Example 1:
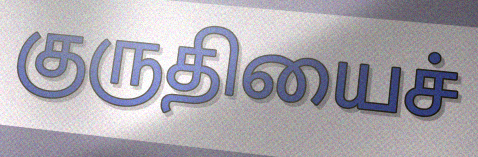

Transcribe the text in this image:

குருதியைச்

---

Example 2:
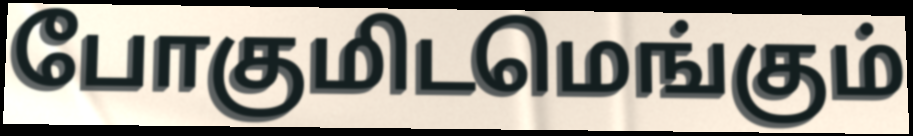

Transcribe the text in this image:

போகுமிடமெங்கும்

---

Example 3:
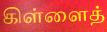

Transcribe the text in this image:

கிள்ளைத்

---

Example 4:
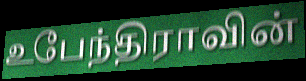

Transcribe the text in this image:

உபேந்திராவின்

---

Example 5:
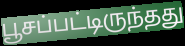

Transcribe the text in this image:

பூசப்பட்டிருந்தது